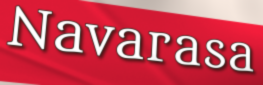
Navarasa